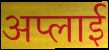
अप्‍लाई